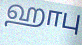
ஹாபு